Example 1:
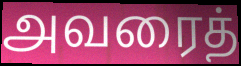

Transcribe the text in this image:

அவரைத்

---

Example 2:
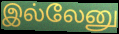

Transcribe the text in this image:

இல்லேனு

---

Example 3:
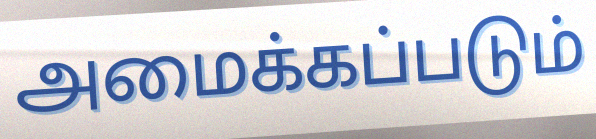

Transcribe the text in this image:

அமைக்கப்படும்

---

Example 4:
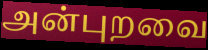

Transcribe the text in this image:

அன்புறவை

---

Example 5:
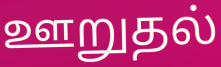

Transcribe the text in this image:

ஊறுதல்